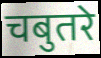
चबुतरे